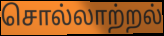
சொல்லாற்றல்